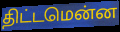
திட்டமென்ன